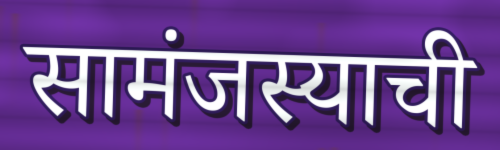
सामंजस्याची